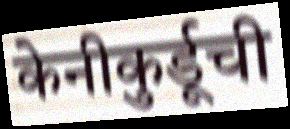
केनीकुर्डूची